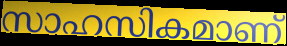
സാഹസികമാണ്